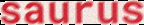
saurus